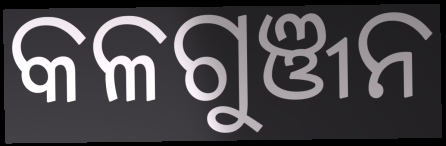
କଳଗୁଞ୍ଜନ